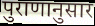
पुराणानुसार